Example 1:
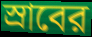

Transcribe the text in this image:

স্রাবের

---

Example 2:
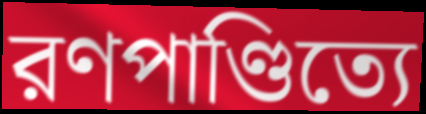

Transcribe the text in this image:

রণপাণ্ডিত্যে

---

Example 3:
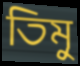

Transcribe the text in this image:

তিমু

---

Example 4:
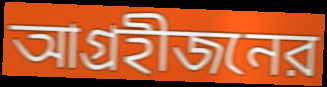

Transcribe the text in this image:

আগ্রহীজনের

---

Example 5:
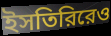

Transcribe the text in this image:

ইসতিরিরেও